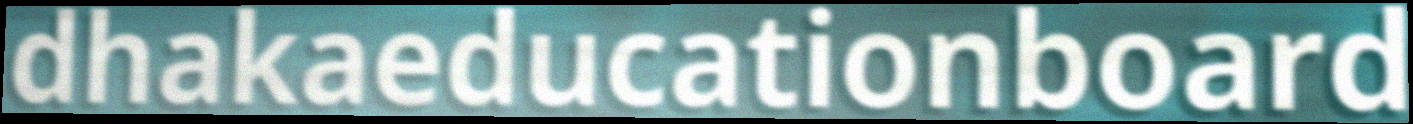
dhakaeducationboard